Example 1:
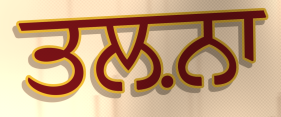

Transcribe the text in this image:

ਤਲ਼ਨਾ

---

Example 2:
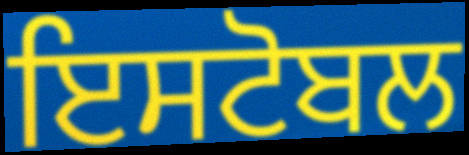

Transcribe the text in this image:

ਇਸਟੋਬਲ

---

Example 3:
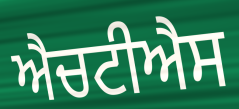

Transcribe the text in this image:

ਐਚਟੀਐਸ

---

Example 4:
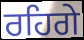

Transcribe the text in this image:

ਰਹਿਗੇ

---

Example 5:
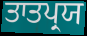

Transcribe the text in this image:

ਤਾਤਪ੍ਰਯ